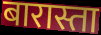
बारास्ता